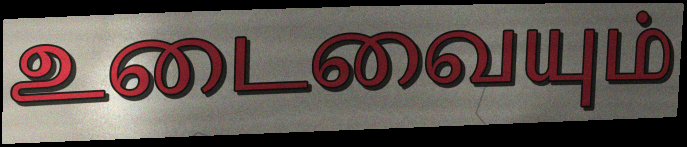
உடைவையும்